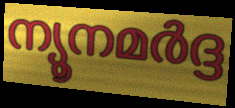
ന്യൂനമർദ്ദ